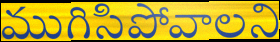
ముగిసిపోవాలని